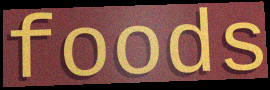
foods